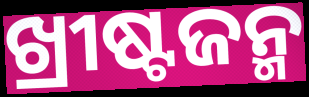
ଖ୍ରୀଷ୍ଟଜନ୍ମ